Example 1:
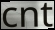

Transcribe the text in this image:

cnt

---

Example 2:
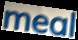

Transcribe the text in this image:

meal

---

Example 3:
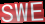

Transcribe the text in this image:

SWE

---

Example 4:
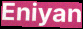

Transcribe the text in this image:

Eniyan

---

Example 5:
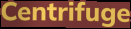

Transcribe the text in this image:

Centrifuge